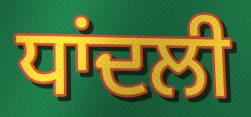
ਧਾਂਦਲੀ